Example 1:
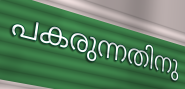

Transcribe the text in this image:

പകരുന്നതിനു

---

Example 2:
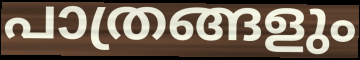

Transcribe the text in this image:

പാത്രങ്ങളും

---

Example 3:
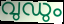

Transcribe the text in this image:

വുഡും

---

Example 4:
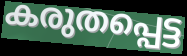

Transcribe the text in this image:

കരുതപ്പെട്ട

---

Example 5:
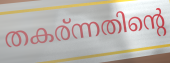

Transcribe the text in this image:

തകര്ന്നതിന്റെ